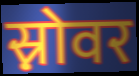
स्नोवर